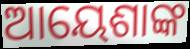
ଆୟେଶାଙ୍କ